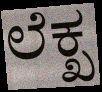
ಲೆಕ್ಖ